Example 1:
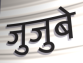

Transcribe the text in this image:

जुजुबे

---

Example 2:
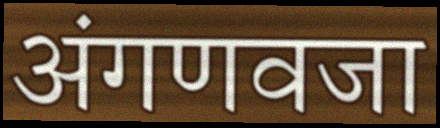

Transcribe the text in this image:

अंगणवजा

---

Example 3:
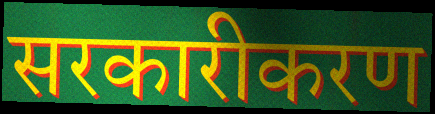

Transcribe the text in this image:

सरकारीकरण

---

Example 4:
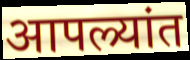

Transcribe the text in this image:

आपल्यांत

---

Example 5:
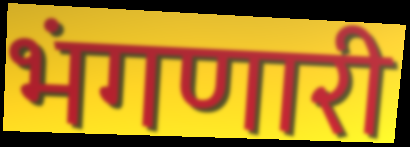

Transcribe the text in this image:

भंगणारी